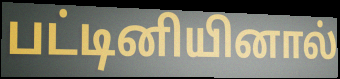
பட்டினியினால்